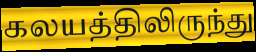
கலயத்திலிருந்து